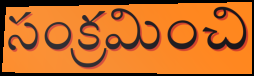
సంక్రమించి